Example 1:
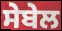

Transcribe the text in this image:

ਸੇਬੇਲ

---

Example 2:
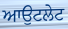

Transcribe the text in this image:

ਆਉਟਲੇਟ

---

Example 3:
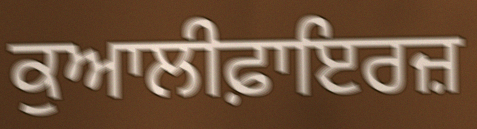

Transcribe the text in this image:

ਕੁਆਲੀਫ਼ਾਇਰਜ਼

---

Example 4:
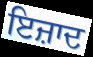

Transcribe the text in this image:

ਇਜ਼ਾਦ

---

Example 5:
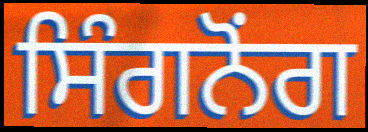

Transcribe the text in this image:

ਸਿੰਗਨੋਂਗ